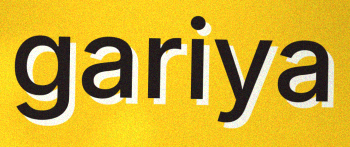
gariya